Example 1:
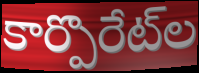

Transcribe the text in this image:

కార్పొరేట్‌ల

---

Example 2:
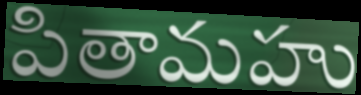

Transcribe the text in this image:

పితామహు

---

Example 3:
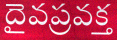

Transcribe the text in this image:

దైవప్రవక్త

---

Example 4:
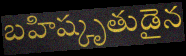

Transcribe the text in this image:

బహిష్కృతుడైన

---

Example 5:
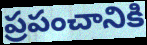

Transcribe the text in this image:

ప్రపంచానికి